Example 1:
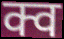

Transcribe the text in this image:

क्व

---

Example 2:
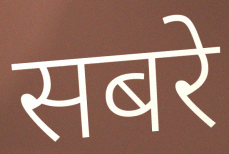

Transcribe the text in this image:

सबरे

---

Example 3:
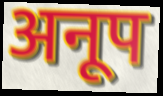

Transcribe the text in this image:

अनूप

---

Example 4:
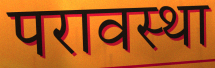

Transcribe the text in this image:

परावस्था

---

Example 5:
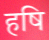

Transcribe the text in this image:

हषि